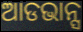
ଆଡଭାନ୍ସ